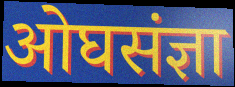
ओघसंज्ञा